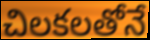
చిలకలతోనే